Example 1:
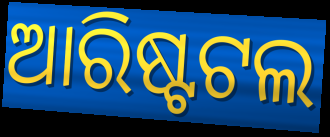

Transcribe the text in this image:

ଆରିଷ୍ଟଟଲ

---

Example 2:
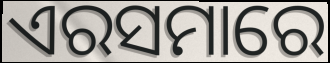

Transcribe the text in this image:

ଏରସମାରେ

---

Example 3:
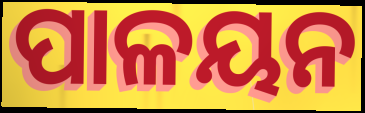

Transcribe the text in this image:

ପାଳୟନ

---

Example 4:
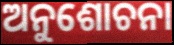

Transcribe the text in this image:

ଅନୁଶୋଚନା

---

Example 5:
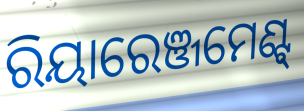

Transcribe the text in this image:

ରିୟାରେଞ୍ଜମେଣ୍ଟ୍